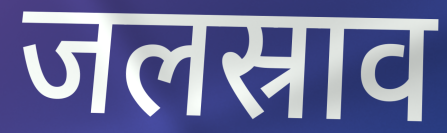
जलस्राव